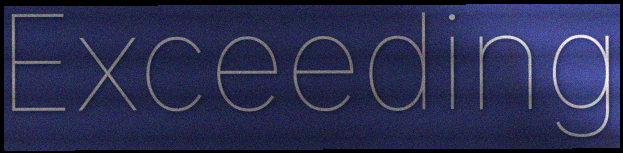
Exceeding